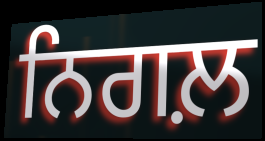
ਨਿਗਲ਼